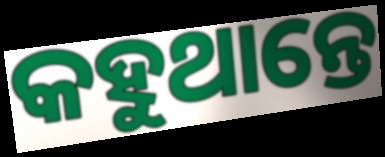
କହୁଥାନ୍ତେ